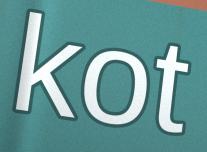
kot